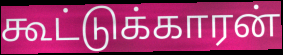
கூட்டுக்காரன்